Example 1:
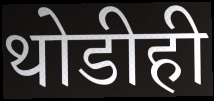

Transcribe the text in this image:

थोडीही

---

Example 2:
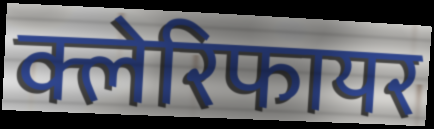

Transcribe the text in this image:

क्लेरिफायर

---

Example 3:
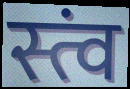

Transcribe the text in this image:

स्त्वं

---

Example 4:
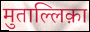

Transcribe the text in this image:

मुताल्लिक़ा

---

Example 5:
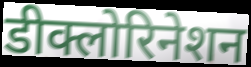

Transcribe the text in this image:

डीक्लोरिनेशन